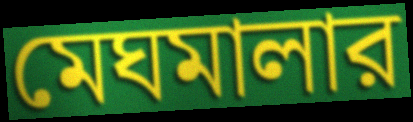
মেঘমালার